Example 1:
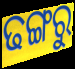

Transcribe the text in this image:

ଢଙ୍ଗରୁ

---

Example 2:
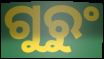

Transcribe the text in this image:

ଗୁରୁଂ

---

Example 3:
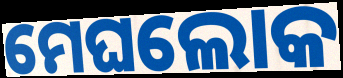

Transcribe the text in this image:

ମେଘଲୋକ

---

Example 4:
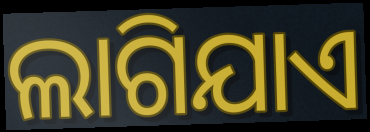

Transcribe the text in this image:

ଲାଗିଯାଏ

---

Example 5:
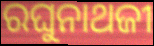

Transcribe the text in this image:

ରଘୁନାଥଜୀ